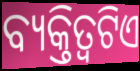
ବ୍ୟକ୍ତିତ୍ବଟିଏ